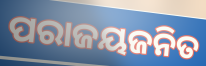
ପରାଜୟଜନିତ